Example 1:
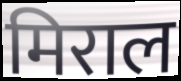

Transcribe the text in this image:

मिराल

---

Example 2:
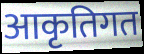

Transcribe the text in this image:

आकृतिगत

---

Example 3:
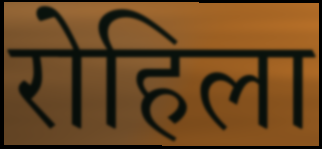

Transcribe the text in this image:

रोहिला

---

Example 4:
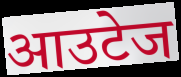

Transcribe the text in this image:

आउटेज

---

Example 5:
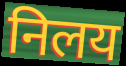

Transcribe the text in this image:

निलय